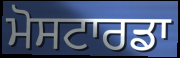
ਮੋਸਟਾਰਡਾ